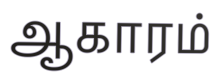
ஆகாரம்